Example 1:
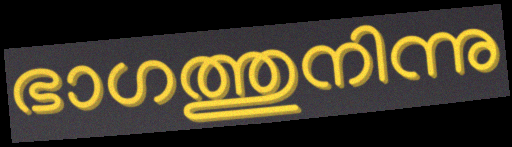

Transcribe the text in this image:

ഭാഗത്തുനിന്നു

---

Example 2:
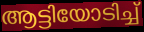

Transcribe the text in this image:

ആട്ടിയോടിച്ച്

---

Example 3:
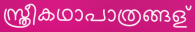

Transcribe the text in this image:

സ്ത്രീകഥാപാത്രങ്ങള്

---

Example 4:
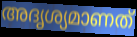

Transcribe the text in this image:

അദൃശ്യമാണത്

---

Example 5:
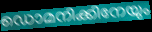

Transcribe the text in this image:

ഡൊമനിക്കിനേയും